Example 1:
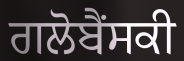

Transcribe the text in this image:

ਗਲੋਬੈਂਸਕੀ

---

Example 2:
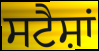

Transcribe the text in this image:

ਸਟੈਸ਼ਾਂ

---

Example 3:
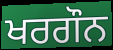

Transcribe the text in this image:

ਖਰਗੌਨ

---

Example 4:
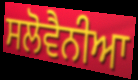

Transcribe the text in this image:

ਸਲੋਵੈਨੀਆ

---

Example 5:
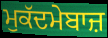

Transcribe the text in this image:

ਮੁਕੱਦਮੇਬਾਜ਼